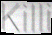
Killi